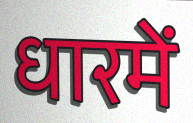
धारमें